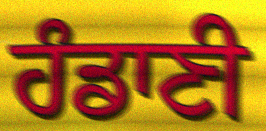
ਹੰਡਾਣੀ